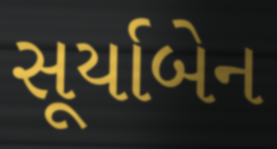
સૂર્યાબેન